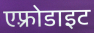
एफ़्रोडाइट